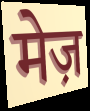
मेज़